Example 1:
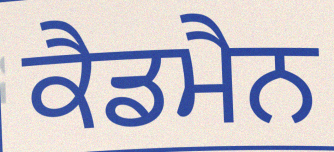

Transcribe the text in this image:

ਕੈਡਮੈਨ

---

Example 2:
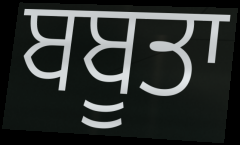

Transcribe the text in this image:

ਬਬੂਤਾ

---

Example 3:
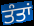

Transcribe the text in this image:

ਤੰਤਾਂ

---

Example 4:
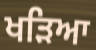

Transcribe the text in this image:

ਖੜਿਆ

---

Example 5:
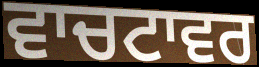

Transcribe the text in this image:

ਵਾਚਟਾਵਰ